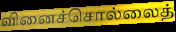
வினைச்சொல்லைத்